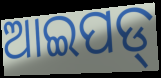
ଆଇପଡ୍